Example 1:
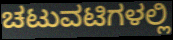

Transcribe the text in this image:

ಚಟುವಟಿಗಳಲ್ಲಿ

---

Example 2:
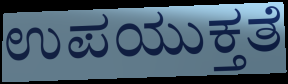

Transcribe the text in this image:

ಉಪಯುಕ್ತತೆ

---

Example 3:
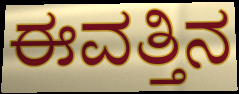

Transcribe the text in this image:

ಈವತ್ತಿನ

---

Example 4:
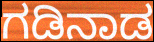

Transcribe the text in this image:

ಗಡಿನಾಡ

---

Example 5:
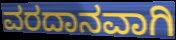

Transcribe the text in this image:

ವರದಾನವಾಗಿ